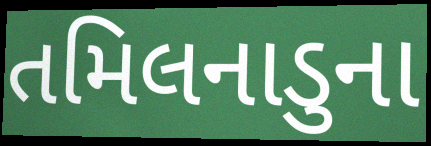
તમિલનાડુના